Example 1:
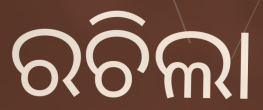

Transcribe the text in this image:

ରଚିଲା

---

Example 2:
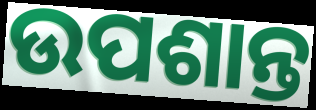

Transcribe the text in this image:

ଉପଶାନ୍ତ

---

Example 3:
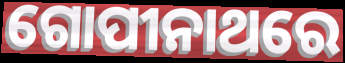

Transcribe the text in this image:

ଗୋପୀନାଥରେ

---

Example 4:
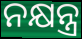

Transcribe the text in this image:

ନକ୍ଷନ୍ତ୍ର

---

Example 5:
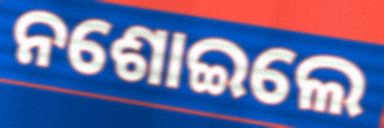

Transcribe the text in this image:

ନଶୋଇଲେ